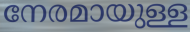
നേരമായുള്ള